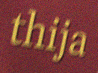
thija